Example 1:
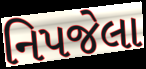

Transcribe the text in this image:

નિપજેલા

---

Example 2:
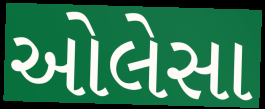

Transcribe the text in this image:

ઓલેસા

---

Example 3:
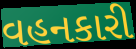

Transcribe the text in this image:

વહનકારી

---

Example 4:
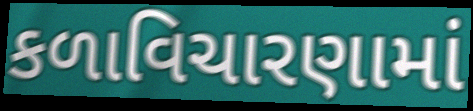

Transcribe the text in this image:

કળાવિચારણામાં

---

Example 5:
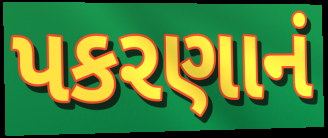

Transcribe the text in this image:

પકરણાનં